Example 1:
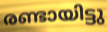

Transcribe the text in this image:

രണ്ടായിട്ടു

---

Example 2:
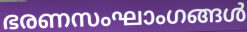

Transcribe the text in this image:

ഭരണസംഘാംഗങ്ങൾ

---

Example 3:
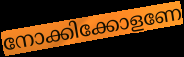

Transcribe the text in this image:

നോക്കിക്കോളണേ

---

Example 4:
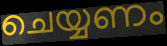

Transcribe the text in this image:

ചെയ്യണം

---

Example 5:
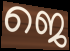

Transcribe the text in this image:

ജെ